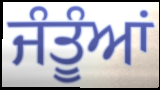
ਜੰਤੂੰਆਂ